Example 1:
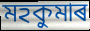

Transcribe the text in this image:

মহকুমাৰ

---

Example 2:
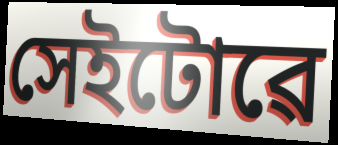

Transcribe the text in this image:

সেইটোৱে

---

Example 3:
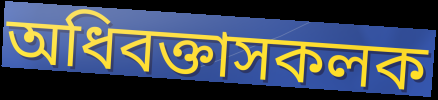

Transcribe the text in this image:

অধিবক্তাসকলক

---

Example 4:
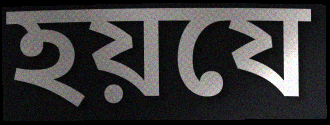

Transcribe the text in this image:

হয়যে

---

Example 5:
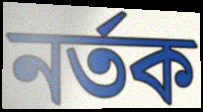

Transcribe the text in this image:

নৰ্তক